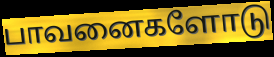
பாவனைகளோடு